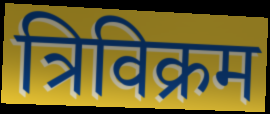
त्रिविक्रम